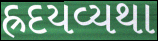
હ્રદયવ્યથા